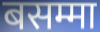
बसम्मा